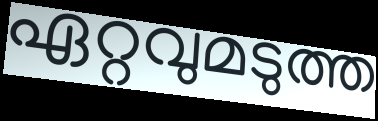
ഏറ്റവുമടുത്ത